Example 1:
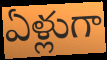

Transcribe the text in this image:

ఏళ్లుగా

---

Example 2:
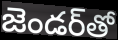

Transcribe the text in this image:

జెండర్‌తో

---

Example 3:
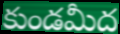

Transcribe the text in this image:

కుండమీద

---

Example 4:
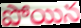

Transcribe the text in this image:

పోయిన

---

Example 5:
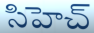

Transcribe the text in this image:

సిహెచ్